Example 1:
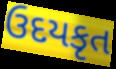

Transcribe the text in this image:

ઉદયકૃત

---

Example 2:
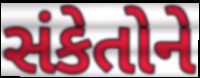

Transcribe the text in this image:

સંકેતોને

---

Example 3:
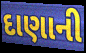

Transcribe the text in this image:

દાણાની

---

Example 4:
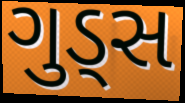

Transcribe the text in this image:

ગુડ્સ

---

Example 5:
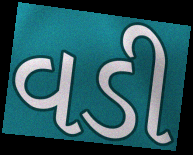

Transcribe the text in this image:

વડી